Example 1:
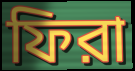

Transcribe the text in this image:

ফিরা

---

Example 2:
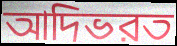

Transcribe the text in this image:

আদিভরত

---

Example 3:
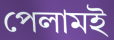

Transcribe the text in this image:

পেলামই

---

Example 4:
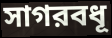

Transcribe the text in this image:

সাগরবধূ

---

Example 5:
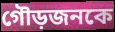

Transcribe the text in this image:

গৌড়জনকে